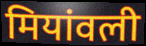
मियांवली